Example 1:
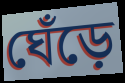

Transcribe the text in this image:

ঘেঁড়ে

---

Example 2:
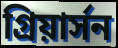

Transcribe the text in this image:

গ্রিয়ার্সন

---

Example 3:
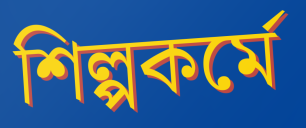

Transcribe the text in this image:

শিল্পকর্মে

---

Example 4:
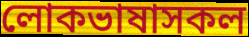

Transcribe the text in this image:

লোকভাষাসকল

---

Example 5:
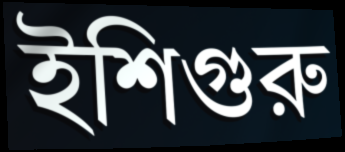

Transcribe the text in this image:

ইশিগুরু